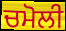
ਚਮੋਲੀ